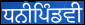
ਧਨੀਪਿੰਡਵੀ